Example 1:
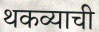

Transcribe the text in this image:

थकव्याची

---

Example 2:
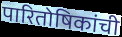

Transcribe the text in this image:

पारितोषिकांची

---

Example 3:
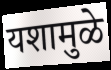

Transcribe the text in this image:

यशामुळे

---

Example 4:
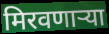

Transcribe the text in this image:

मिरवणाऱ्या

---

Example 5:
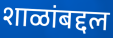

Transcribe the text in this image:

शाळांबद्दल